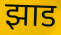
झाड